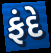
ફંદે